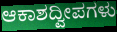
ಆಕಾಶದ್ವೀಪಗಳು